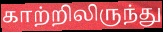
காற்றிலிருந்து